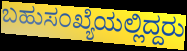
ಬಹುಸಂಖ್ಯೆಯಲ್ಲಿದ್ದರು